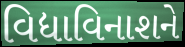
વિદ્યાવિનાશને